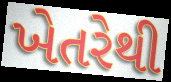
ખેતરેથી